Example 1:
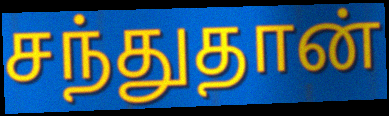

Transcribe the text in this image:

சந்துதான்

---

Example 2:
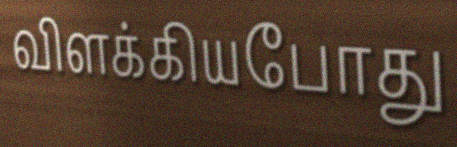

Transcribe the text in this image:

விளக்கியபோது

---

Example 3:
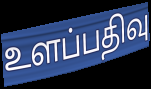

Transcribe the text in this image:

உளப்பதிவு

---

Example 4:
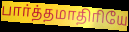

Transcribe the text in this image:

பார்த்தமாதிரியே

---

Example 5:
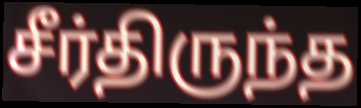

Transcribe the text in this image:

சீர்திருந்த